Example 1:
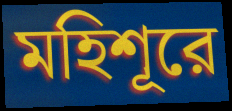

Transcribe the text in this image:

মহিশূরে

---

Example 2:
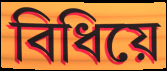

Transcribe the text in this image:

বিধিয়ে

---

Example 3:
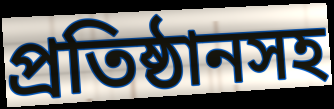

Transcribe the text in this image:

প্রতিষ্ঠানসহ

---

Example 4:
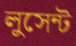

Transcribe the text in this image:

লুসেন্ট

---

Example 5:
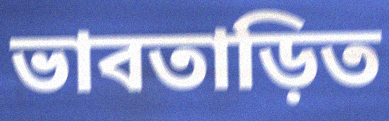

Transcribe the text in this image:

ভাবতাড়িত